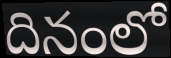
దినంలో